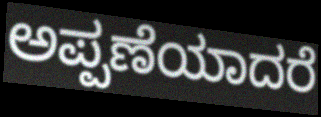
ಅಪ್ಪಣೆಯಾದರೆ